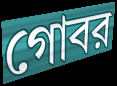
গোবর